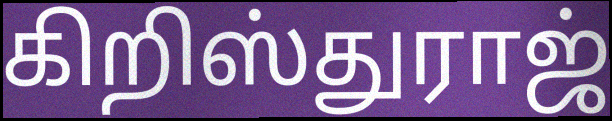
கிறிஸ்துராஜ்